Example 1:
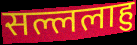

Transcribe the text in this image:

सल्ललाहु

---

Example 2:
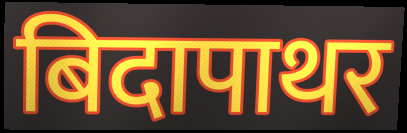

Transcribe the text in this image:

बिदापाथर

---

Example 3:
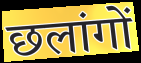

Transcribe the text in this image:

छलांगों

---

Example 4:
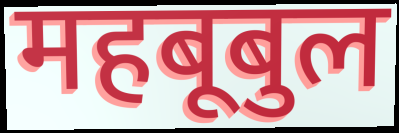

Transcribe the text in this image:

महबूबुल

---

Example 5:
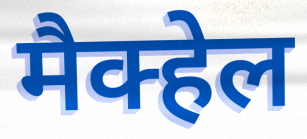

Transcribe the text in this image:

मैक्हेल